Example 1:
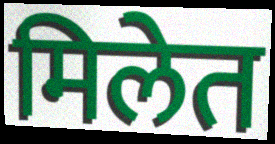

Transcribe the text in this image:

मिलेत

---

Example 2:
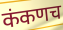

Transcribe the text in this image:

कंकणच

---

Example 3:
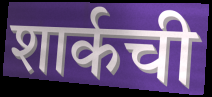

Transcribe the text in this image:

शार्कची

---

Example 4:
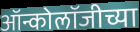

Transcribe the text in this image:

ऑन्कोलॉजीच्या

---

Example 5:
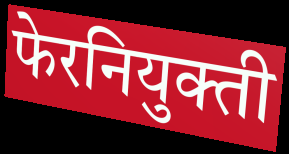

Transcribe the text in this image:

फेरनियुक्ती